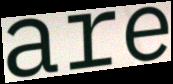
are